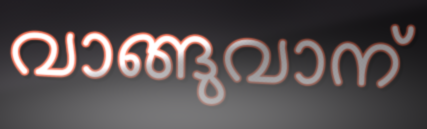
വാങ്ങുവാന്